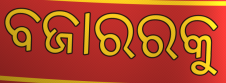
ବଜାରରକୁ